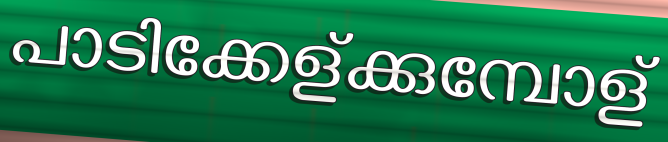
പാടിക്കേള്ക്കുമ്പോള്